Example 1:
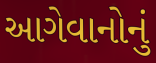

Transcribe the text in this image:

આગેવાનોનું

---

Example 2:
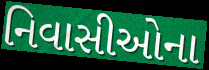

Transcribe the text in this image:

નિવાસીઓના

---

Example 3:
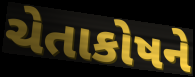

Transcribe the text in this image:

ચેતાકોષને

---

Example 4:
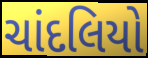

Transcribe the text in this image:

ચાંદલિયો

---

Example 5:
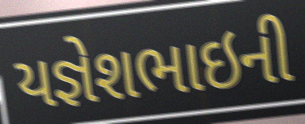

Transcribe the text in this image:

યજ્ઞેશભાઇની